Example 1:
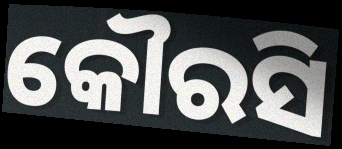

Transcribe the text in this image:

କୌରସି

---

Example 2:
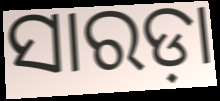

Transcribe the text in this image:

ସାରଡ଼ା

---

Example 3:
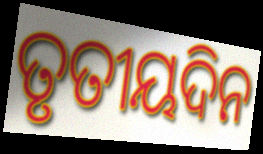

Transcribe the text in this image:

ତୃତୀୟଦିନ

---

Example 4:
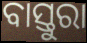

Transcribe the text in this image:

ବାସ୍ତୁରା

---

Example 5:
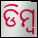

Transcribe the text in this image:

ଡିମ୍ବ